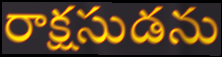
రాక్షసుడను